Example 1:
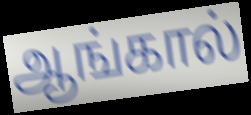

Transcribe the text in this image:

ஆங்கால்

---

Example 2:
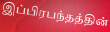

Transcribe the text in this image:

இப்பிரபந்தத்தின்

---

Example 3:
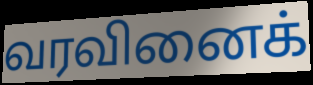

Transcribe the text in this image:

வரவினைக்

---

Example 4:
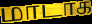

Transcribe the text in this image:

மாடாக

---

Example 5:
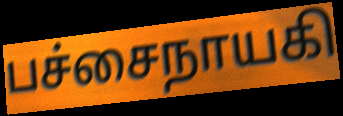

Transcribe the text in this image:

பச்சைநாயகி